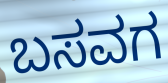
ಬಸವಗ